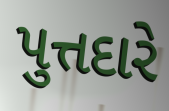
પુત્તદારે